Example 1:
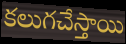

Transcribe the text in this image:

కలుగచేస్తాయి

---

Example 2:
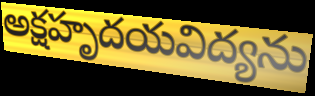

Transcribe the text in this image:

అక్షహృదయవిద్యను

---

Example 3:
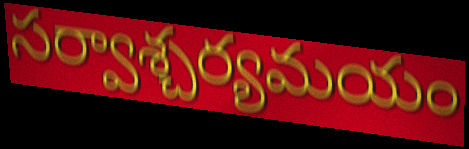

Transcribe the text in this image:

సర్వాశ్చర్యమయం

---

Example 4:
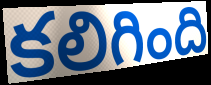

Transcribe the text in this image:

కలిగింది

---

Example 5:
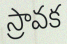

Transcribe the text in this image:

స్రావక